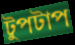
টুপটাপ